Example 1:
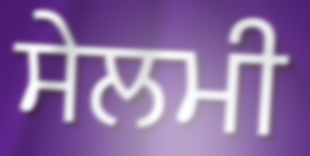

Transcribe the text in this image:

ਸੇਲਮੀ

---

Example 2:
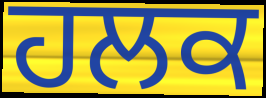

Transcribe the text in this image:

ਹਲਕ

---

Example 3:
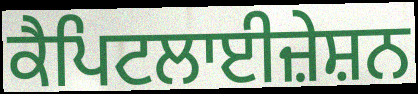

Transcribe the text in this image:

ਕੈਪਿਟਲਾਈਜ਼ੇਸ਼ਨ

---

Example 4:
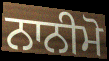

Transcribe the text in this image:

ਨਾਨੀਮੋ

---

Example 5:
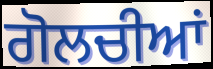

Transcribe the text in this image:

ਗੋਲਚੀਆਂ